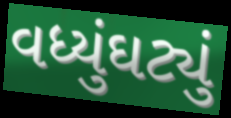
વધ્યુંઘટ્યું